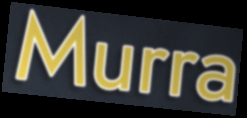
Murra